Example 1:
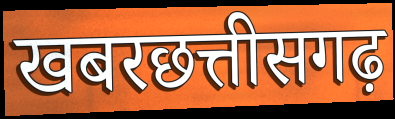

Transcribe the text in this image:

खबरछत्तीसगढ़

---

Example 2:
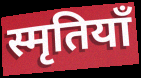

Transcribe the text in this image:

स्मृतियाँ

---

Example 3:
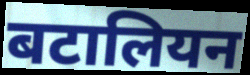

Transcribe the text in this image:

बटालियन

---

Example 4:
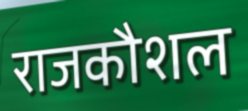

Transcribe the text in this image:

राजकौशल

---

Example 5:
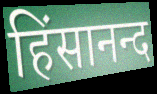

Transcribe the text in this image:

हिंसानन्द